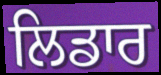
ਲਿਡਾਰ